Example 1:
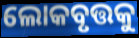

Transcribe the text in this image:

ଲୋକବୃତ୍ତକୁ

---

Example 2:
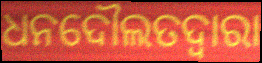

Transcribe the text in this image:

ଧନଦୌଲତଦ୍ଵାରା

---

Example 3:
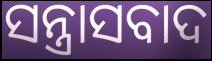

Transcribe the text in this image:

ସନ୍ତ୍ରାସବାଦ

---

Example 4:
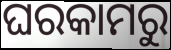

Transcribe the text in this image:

ଘରକାମରୁ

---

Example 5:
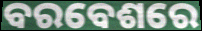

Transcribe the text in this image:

ବରବେଶରେ